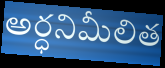
అర్ధనిమీలిత